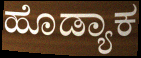
ಹೊಡ್ಯಾಕ